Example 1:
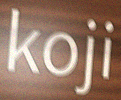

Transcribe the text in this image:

koji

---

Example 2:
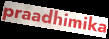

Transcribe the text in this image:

praadhimika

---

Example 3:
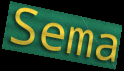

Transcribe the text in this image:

Sema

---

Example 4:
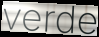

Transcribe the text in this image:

verde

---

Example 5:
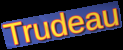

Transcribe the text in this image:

Trudeau